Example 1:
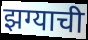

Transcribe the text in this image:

झग्याची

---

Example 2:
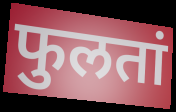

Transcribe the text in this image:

फुलतां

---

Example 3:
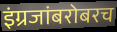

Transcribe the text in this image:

इंग्रजांबरोबरच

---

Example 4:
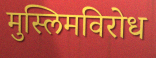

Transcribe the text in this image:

मुस्लिमविरोध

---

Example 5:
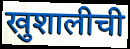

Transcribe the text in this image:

खुशालीची